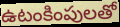
ఉటంకింపులతో